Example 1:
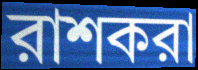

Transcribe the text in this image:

রাশকরা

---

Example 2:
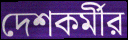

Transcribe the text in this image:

দেশকর্মীর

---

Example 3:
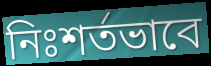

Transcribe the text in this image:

নিঃশর্তভাবে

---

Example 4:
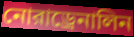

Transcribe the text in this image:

নোরাড্রেনালিন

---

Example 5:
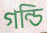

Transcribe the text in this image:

গন্ডি